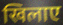
खिलाए